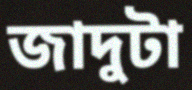
জাদুটা